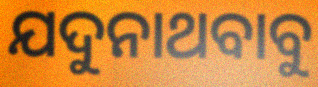
ଯଦୁନାଥବାବୁ